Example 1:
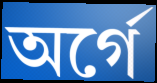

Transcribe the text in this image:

অর্গে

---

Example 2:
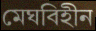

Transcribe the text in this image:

মেঘবিহীন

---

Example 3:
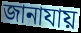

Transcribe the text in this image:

জানাযায়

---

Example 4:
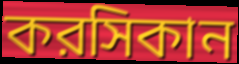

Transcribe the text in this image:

করসিকান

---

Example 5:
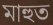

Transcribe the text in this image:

মাহুত